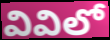
వివిలో